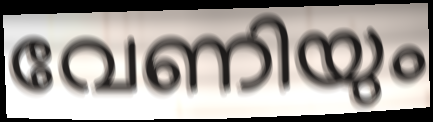
വേണിയും